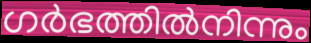
ഗർഭത്തിൽനിന്നും